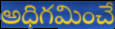
అధిగమించే